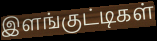
இளங்குட்டிகள்